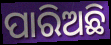
ପାରିଅଛି